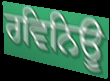
ਰਵਿਨਿਊ